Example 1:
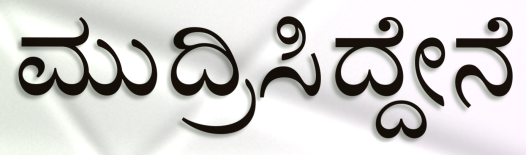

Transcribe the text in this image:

ಮುದ್ರಿಸಿದ್ದೇನೆ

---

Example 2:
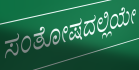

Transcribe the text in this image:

ಸಂತೋಷದಲ್ಲಿಯೇ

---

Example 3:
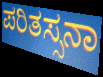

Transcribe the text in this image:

ಪರಿತಸ್ಸನಾ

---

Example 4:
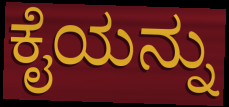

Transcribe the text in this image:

ಕೈಯನ್ನು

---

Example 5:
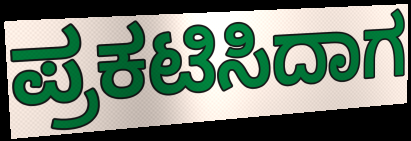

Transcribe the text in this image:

ಪ್ರಕಟಿಸಿದಾಗ